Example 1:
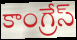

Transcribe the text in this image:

కాంగ్రేస్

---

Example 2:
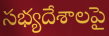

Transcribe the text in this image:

సభ్యదేశాలపై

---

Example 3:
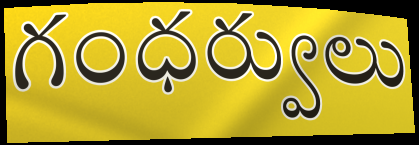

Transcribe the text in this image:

గంధర్వులు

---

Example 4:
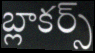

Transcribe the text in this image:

బ్లాకర్స్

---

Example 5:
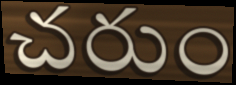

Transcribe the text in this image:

చరుం